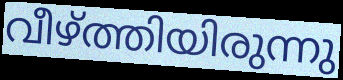
വീഴ്ത്തിയിരുന്നു